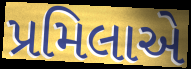
પ્રમિલાએ